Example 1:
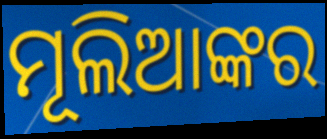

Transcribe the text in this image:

ମୂଲିଆଙ୍କର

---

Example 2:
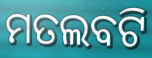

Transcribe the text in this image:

ମତଲବଟି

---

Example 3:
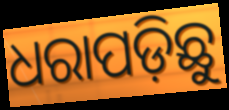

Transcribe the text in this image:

ଧରାପଡ଼ିଛୁ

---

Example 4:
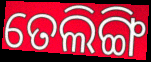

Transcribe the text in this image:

ତେଲିଙ୍ଗି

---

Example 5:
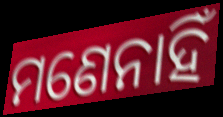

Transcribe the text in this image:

ମଣେନାହିଁ